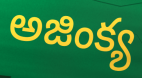
అజింక్య